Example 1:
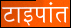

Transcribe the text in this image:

टाइपांत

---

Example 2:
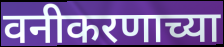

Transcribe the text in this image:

वनीकरणाच्या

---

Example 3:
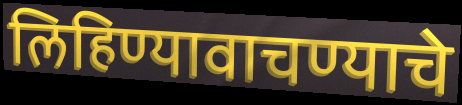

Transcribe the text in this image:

लिहिण्यावाचण्याचे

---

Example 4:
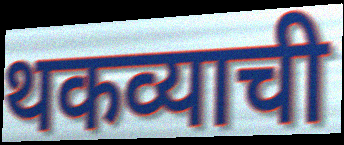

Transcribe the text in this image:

थकव्याची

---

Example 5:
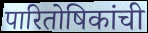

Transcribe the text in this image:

पारितोषिकांची